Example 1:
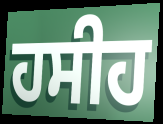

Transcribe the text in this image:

ਹਸੀਹ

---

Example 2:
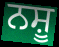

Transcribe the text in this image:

ਨਸ਼ੂ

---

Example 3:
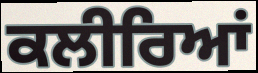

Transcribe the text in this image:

ਕਲੀਰਿਆਂ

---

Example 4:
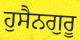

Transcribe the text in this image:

ਹੁਸੈਨਗੁਰੂ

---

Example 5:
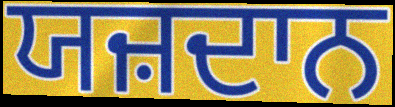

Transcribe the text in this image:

ਯਜ਼ਦਾਨ